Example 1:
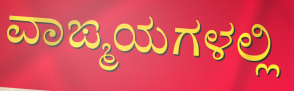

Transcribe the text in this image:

ವಾಙ್ಮಯಗಳಲ್ಲಿ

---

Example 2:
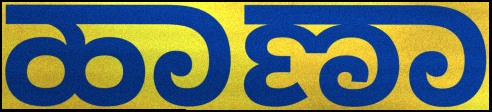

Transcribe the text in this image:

ಹಾಣಾ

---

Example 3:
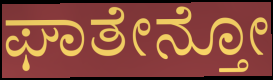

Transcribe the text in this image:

ಘಾತೇನ್ತೋ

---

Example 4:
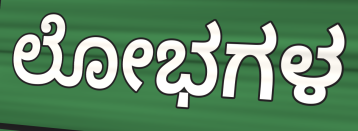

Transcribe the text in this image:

ಲೋಭಗಳ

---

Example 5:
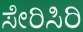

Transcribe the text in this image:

ಸೇರಿಸಿರಿ